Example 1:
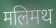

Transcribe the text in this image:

मलिमथ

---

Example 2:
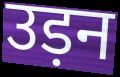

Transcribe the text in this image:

उड़न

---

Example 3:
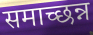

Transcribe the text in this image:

समाच्छन्न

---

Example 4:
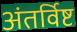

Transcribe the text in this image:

अंतर्विष्ट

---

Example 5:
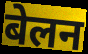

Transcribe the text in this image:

बेलन